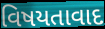
વિષયતાવાદ